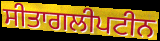
ਸੀਤਾਗਲੀਪਟੀਨ